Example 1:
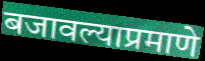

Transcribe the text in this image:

बजावल्याप्रमाणे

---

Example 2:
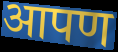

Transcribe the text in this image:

आपण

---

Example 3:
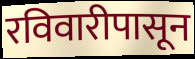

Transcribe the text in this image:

रविवारीपासून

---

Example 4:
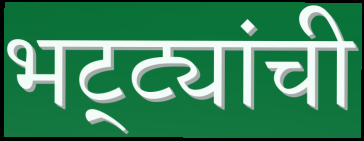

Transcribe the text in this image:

भट्ट्यांची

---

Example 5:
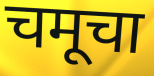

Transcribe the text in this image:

चमूचा